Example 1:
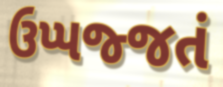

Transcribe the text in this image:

ઉપ્પજ્જતં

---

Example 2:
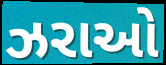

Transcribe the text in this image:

ઝરાઓ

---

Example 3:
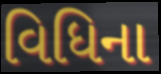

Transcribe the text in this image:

વિધિના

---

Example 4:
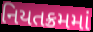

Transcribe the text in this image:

નિયતક્રમમાં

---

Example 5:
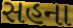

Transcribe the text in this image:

સહના